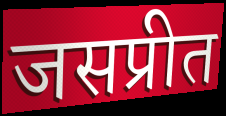
जसप्रीत